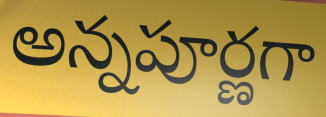
అన్నపూర్ణగా